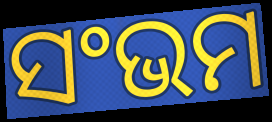
ସଂଭମ